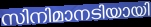
സിനിമാനടിയായി